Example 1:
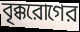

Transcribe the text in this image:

বৃক্করোগের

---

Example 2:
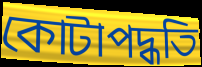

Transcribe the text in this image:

কোটাপদ্ধতি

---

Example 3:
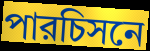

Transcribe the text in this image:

পারচিসনে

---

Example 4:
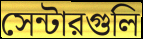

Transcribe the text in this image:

সেন্টারগুলি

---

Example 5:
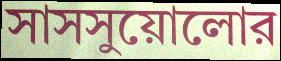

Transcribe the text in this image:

সাসসুয়োলোর